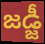
జడ్జీ